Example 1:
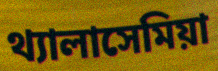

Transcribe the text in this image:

থ্যালাসেমিয়া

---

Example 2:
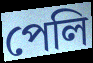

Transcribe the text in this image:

পেলি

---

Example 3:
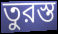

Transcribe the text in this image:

তুরস্ত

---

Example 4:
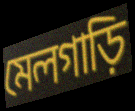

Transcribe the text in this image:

মেলগাড়ি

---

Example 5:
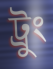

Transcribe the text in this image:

ট্রুং